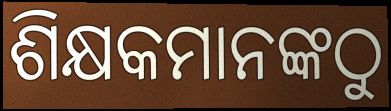
ଶିକ୍ଷକମାନଙ୍କଠୁ